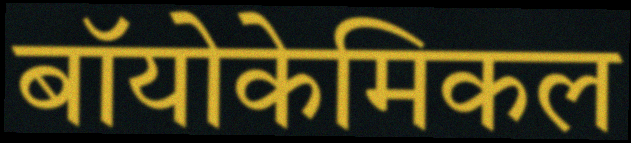
बॉयोकेमिकल